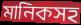
মানিকসহ